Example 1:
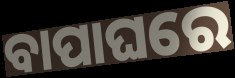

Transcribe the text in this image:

ବାପାଘରେ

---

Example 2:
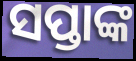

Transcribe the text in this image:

ସପ୍ତାଙ୍କ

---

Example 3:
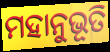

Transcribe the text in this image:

ମହାନୁଭୂତି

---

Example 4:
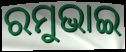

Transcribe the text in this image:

ରମୁଭାଇ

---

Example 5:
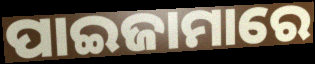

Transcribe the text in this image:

ପାଇଜାମାରେ